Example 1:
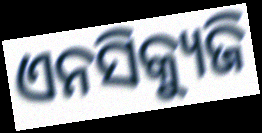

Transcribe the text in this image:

ଏନସିକ୍ୟୁଜି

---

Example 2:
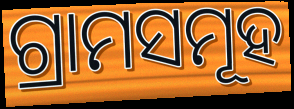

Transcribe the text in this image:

ଗ୍ରାମସମୂହ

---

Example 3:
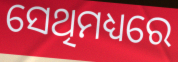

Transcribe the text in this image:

ସେଥିମଧ୍ୟରେ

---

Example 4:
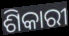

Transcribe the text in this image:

ଶିକାରୀ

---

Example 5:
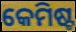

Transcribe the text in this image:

କେମିଷ୍ଟ